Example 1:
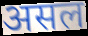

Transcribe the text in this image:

असल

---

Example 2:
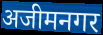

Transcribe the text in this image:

अजीमनगर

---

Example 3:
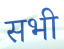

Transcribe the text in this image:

सभी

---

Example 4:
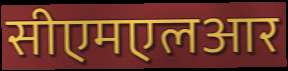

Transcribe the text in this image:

सीएमएलआर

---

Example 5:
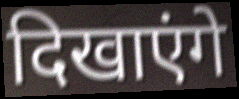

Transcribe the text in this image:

दिखाएंगे